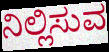
ನಿಲ್ಲಿಸುವ